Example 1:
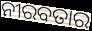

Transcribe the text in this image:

ନୀରବତାର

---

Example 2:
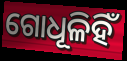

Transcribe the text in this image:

ଗୋଧୂଳିହିଁ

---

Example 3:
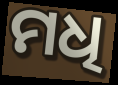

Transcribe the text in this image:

ମଧି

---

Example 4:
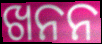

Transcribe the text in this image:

ଖନନ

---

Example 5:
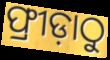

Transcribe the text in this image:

ଫ୍ରୀଡ଼ାଠୁ